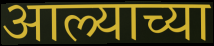
आल्याच्या